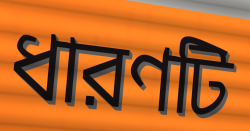
ধারণটি